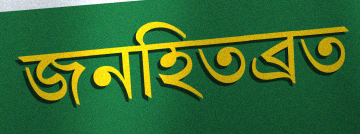
জনহিতব্রত